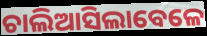
ଚାଲିଆସିଲାବେଳେ